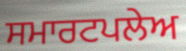
ਸਮਾਰਟਪਲੇਅ